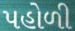
પહોળી